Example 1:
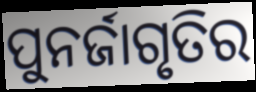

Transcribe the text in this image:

ପୁନର୍ଜାଗୃତିର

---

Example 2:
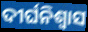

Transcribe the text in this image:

ଦୀର୍ଘନିଶ୍ୱାସ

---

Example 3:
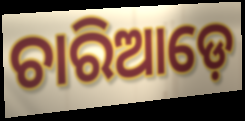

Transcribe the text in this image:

ଚାରିଆଡ଼େ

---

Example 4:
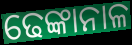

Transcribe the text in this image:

ଢେଙ୍କାନାଳ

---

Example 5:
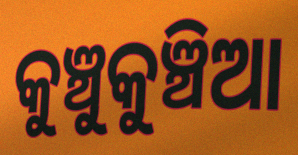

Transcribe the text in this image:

କୁଞ୍ଚୁକୁଞ୍ଚିଆ